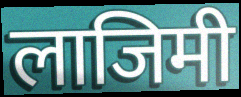
लाजिमी